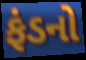
ફંડનો